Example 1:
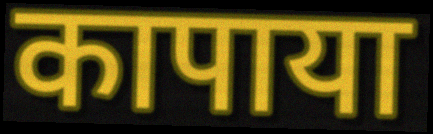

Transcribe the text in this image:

कापाया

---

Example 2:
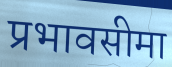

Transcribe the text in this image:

प्रभावसीमा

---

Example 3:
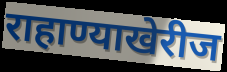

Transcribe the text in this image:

राहाण्याखेरीज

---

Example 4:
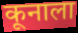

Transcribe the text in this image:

कूनाला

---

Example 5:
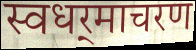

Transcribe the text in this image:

स्वधर्माचरण